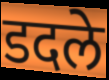
डदले